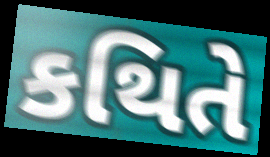
કથિતે